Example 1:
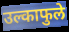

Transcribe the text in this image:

उल्काफुले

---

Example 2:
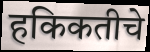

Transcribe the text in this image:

हकिकतीचे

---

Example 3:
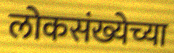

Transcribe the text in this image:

लोकसंख्‍येच्‍या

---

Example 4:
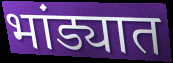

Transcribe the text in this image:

भांड्यात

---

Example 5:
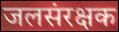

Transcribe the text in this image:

जलसंरक्षक